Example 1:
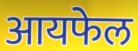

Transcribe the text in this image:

आयफेल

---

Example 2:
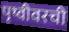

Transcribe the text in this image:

पृथ्वीवरची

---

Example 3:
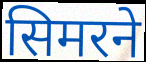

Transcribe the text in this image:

सिमरने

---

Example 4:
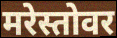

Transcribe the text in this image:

मरेस्तोवर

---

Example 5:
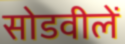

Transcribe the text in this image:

सोडवीलें